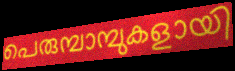
പെരുമ്പാമ്പുകളായി